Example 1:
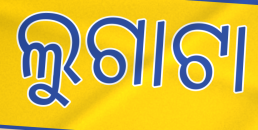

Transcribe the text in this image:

ଲୁଗାଟା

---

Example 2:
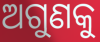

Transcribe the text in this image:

ଅଗୁଣକୁ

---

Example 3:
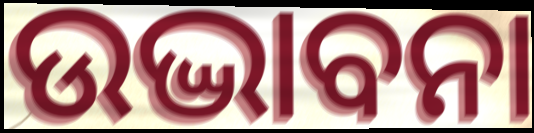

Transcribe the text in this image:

ଉଦ୍ଭାବନା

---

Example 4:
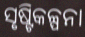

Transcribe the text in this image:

ସୃଷ୍ଟିକଳ୍ପନା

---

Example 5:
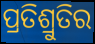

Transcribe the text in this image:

ପ୍ରତିଶ୍ରୁତିର